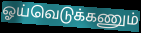
ஓய்வெடுக்கணும்